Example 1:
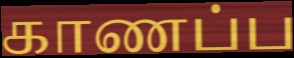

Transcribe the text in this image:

காணப்ப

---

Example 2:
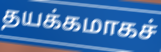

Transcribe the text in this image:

தயக்கமாகச்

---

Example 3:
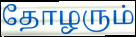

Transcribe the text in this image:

தோழரும்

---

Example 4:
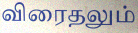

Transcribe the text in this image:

விரைதலும்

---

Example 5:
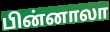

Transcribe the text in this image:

பின்னாலா